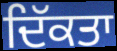
ਦਿੱਕਤਾ